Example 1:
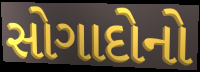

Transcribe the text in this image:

સોગાદોનો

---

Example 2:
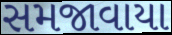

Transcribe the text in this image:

સમજાવાયા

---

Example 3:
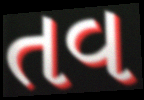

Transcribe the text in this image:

તવ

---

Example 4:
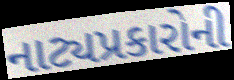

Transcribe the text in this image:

નાટ્યપ્રકારોની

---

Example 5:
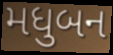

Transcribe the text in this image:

મધુબન